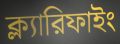
ক্ল্যারিফাইং